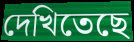
দেখিতেছে